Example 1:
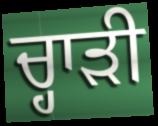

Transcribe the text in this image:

ਚ੍ਹਾੜੀ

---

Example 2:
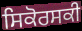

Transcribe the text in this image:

ਸਿਕੋਰਸਕੀ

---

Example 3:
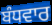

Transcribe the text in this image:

ਬੰਧਵਾਰ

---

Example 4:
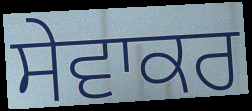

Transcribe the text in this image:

ਸੇਵਾਕਰ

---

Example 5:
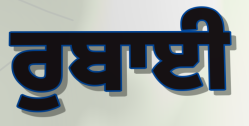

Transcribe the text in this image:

ਰੁਬਾਈ